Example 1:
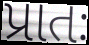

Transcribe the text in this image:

પ્રાતઃ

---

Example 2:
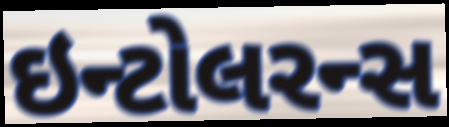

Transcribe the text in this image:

ઇન્ટોલરન્સ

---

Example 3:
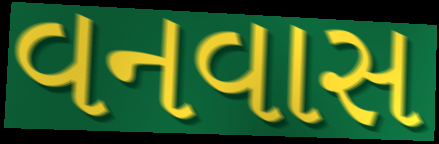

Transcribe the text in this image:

વનવાસ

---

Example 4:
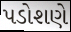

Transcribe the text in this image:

પડોશણે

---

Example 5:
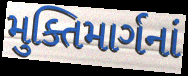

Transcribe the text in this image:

મુક્તિમાર્ગનાં